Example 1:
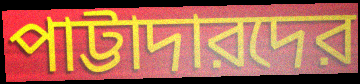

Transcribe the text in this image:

পাট্টাদারদের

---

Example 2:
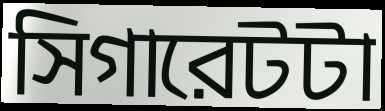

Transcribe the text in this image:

সিগারেটটা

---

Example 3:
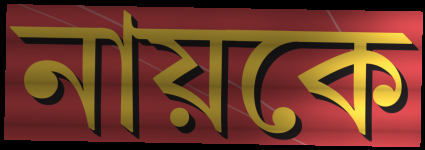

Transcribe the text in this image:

নায়কে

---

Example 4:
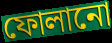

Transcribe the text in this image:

ফোলানো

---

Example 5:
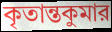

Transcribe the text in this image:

কৃতান্তকুমার